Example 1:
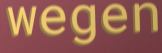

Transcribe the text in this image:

wegen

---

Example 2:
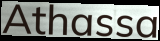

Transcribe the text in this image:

Athassa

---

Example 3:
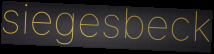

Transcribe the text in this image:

siegesbeck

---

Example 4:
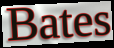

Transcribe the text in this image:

Bates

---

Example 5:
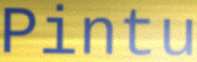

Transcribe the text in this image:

Pintu